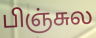
பிஞ்சுல